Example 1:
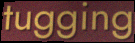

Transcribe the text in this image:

tugging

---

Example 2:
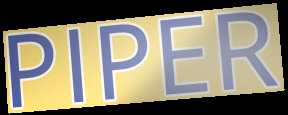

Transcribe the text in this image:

PIPER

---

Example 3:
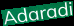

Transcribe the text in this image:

Adaradi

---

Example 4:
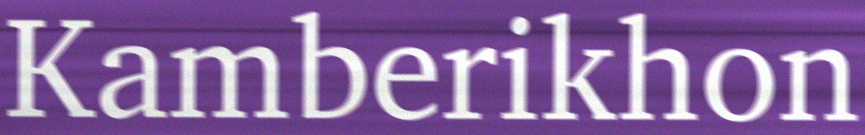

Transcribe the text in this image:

Kamberikhon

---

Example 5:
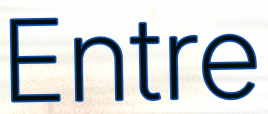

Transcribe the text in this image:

Entre